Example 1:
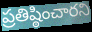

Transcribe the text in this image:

ప్రతిష్ఠించారని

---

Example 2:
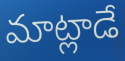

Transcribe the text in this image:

మాట్లాడే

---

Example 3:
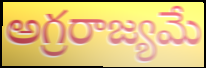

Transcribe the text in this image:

అగ్రరాజ్యమే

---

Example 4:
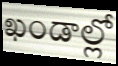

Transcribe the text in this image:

ఖండాల్లో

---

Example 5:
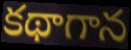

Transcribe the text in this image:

కథాగాన